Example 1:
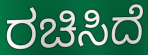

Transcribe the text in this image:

ರಚಿಸಿದೆ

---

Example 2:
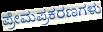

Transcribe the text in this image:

ಪ್ರೇಮಪ್ರಕರಣಗಳು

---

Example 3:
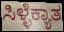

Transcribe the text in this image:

ಸಿಳ್ಳೆಕ್ಯಾತ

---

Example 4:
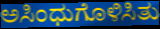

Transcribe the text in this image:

ಅಸಿಂಧುಗೊಳಿಸಿತು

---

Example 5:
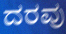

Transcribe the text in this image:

ದರವು